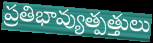
ప్రతిభావ్యుత్పత్తులు